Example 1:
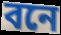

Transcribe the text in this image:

বনে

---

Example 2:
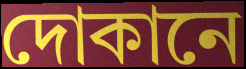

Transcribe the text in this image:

দোকানে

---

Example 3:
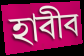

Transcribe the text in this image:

হাবীব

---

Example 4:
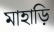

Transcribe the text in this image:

মাহাড়ি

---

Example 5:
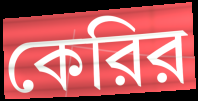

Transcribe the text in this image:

কেরির